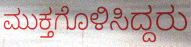
ಮುಕ್ತಗೊಳಿಸಿದ್ದರು